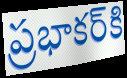
ప్రభాకర్‌కి